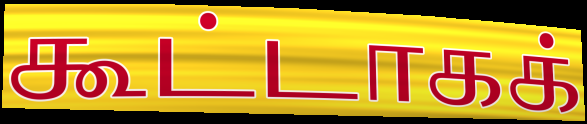
கூட்டாகக்